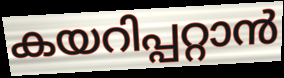
കയറിപ്പറ്റാൻ